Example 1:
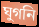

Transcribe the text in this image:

ঘুগনি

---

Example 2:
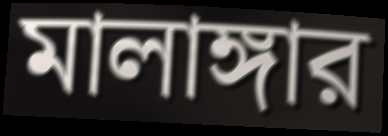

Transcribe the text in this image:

মালাঙ্গার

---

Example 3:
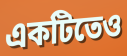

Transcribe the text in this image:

একটিতেও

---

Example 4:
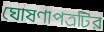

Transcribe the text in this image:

ঘোষণাপত্রটির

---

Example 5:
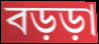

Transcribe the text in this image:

বড়ড়া